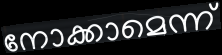
നോക്കാമെന്ന്